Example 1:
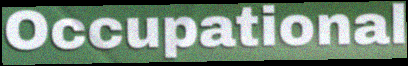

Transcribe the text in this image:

Occupational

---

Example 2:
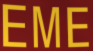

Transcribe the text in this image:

EME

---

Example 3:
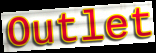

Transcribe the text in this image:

Outlet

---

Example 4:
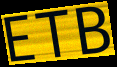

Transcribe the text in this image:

ETB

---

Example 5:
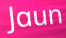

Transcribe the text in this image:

Jaun